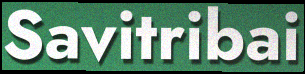
Savitribai